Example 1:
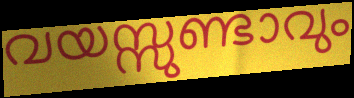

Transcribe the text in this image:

വയസ്സുണ്ടാവും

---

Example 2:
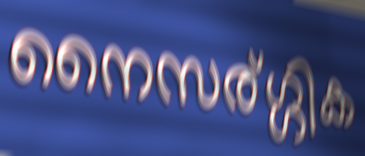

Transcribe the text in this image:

നൈസര്ഗ്ഗിക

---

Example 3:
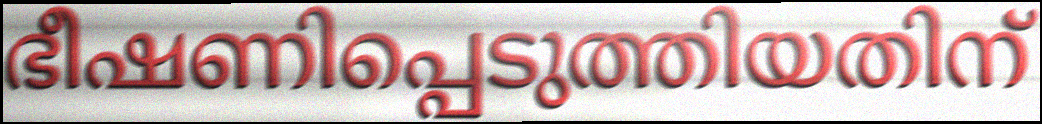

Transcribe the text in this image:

ഭീഷണിപ്പെടുത്തിയതിന്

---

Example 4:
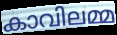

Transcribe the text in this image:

കാവിലമ്മ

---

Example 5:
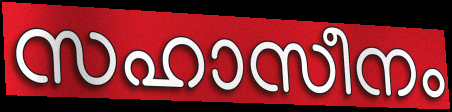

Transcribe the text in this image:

സഹാസീനം